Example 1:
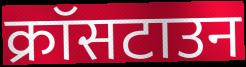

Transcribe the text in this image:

क्रॉसटाउन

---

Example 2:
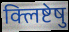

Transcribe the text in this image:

क्लिष्टेषु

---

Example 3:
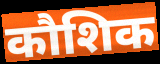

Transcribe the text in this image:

कौशिक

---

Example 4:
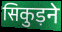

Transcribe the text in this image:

सिकुड़ने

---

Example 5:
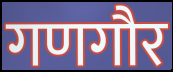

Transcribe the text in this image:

गणगौर